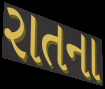
રાતના